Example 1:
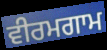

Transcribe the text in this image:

ਵੀਰਮਗਾਮ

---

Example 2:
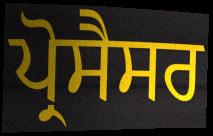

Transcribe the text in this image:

ਪ੍ਰੋਸੈਸਰ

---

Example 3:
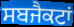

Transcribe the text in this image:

ਸਬਜੈਕਟਾਂ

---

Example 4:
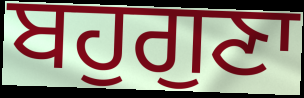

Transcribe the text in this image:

ਬਹੁਗੁਣਾ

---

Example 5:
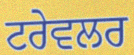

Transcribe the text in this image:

ਟਰੇਵਲਰ